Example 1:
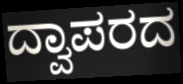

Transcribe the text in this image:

ದ್ವಾಪರದ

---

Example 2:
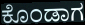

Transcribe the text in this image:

ಕೊಂಡಾಗ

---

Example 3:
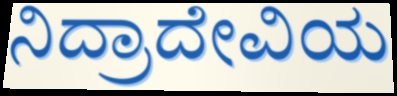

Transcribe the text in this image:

ನಿದ್ರಾದೇವಿಯ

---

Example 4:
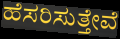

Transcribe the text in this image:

ಹೆಸರಿಸುತ್ತೇವೆ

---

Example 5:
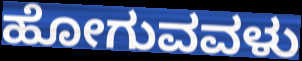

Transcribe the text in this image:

ಹೋಗುವವಳು